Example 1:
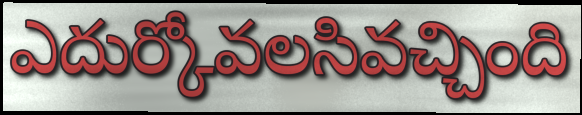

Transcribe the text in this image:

ఎదుర్కోవలసివచ్చింది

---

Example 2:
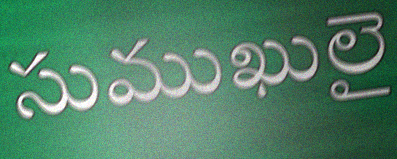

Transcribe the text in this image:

సుముఖులై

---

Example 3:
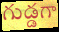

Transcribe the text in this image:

గుడ్డగా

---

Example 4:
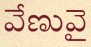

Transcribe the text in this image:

వేణువై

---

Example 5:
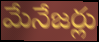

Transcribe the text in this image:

మేనేజర్లు